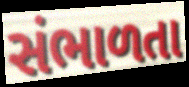
સંભાળતા